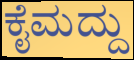
ಕೈಮದ್ದು